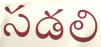
సడలి